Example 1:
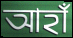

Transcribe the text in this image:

আহাঁ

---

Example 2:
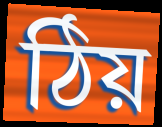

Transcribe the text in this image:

ঠিয়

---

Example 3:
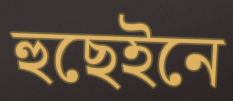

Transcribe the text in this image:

হুছেইনে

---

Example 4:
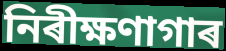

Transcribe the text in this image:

নিৰীক্ষণাগাৰ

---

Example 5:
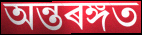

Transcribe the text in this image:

অন্তৰঙ্গত